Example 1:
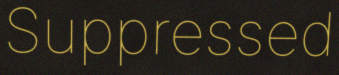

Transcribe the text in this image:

Suppressed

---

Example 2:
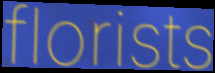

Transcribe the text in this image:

florists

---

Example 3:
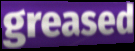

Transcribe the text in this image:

greased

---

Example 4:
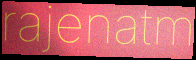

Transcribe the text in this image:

rajenatm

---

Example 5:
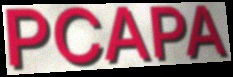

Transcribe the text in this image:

PCAPA